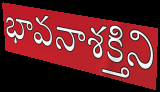
భావనాశక్తిని